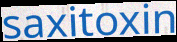
saxitoxin